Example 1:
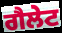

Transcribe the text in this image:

ਗੈਲੇਟ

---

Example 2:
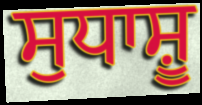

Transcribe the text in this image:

ਸੁਧਾਸ਼ੂ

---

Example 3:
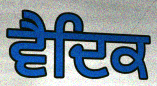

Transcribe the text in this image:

ਵੈਦਿਕ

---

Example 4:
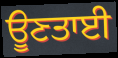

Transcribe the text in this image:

ਊਣਤਾਈ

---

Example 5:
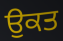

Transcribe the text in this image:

ਉਕਤ